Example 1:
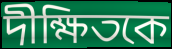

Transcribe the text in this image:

দীক্ষিতকে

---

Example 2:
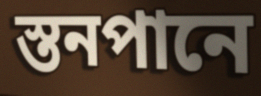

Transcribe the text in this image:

স্তনপানে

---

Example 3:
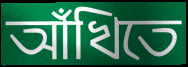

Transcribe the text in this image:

আঁখিতে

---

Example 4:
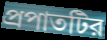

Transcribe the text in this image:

প্রপাতটির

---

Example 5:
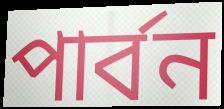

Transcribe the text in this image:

পার্বন